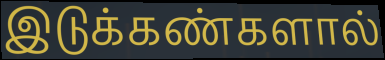
இடுக்கண்களால்